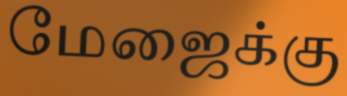
மேஜைக்கு